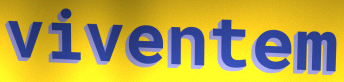
viventem